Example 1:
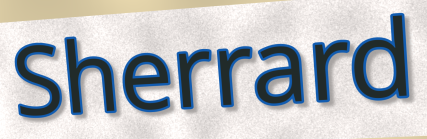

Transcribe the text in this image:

Sherrard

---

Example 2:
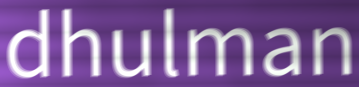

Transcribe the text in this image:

dhulman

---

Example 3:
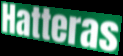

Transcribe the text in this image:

Hatteras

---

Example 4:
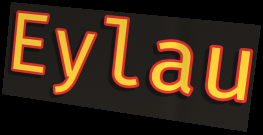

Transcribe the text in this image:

Eylau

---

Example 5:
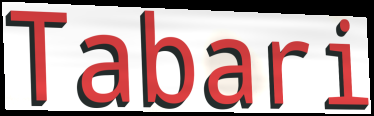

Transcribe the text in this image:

Tabari